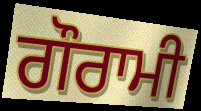
ਗੌਰਾਮੀ